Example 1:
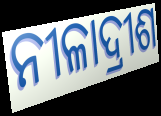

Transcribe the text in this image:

ନୀଳାଦ୍ରୀଶ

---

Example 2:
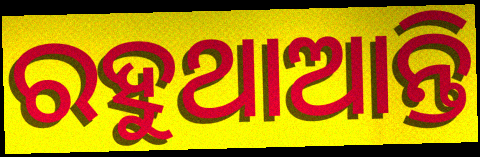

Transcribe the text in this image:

ରହୁଥାଆନ୍ତି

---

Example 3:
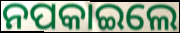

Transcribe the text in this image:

ନପକାଇଲେ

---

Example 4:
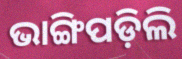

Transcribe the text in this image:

ଭାଙ୍ଗିପଡ଼ିଲି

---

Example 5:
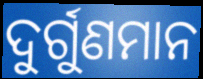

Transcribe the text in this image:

ଦୁର୍ଗୁଣମାନ